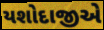
યશોદાજીએ